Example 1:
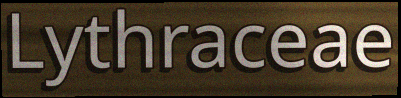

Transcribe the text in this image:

Lythraceae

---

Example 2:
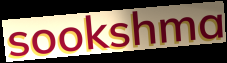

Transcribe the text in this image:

sookshma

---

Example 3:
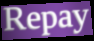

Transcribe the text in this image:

Repay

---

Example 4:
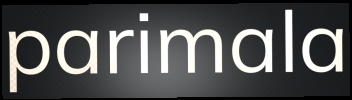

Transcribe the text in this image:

parimala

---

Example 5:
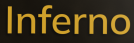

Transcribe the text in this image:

Inferno